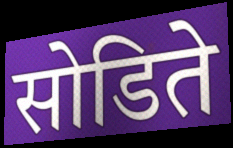
सोडिते